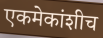
एकमेकांशीच